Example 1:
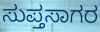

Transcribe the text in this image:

ಸುಪ್ತಸಾಗರ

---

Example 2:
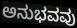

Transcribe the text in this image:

ಅನುಭವವು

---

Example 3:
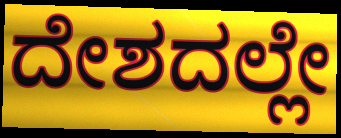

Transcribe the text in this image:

ದೇಶದಲ್ಲೇ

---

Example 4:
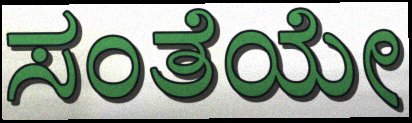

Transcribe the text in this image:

ಸಂತೆಯೇ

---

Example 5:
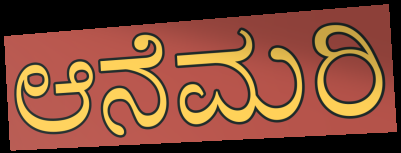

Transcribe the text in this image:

ಆನೆಮರಿ